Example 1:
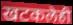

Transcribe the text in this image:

खटकलेही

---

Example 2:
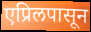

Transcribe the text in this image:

एप्रिलपासून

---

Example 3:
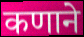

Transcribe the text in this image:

कणाने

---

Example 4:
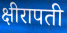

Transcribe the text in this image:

क्षीरापती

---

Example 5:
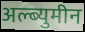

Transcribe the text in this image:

अल्ब्युमीन